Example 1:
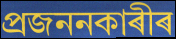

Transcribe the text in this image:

প্ৰজননকাৰীৰ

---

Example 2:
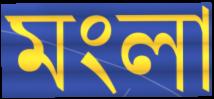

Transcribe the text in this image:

মংলা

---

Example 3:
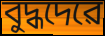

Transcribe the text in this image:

বুদ্ধদেৱে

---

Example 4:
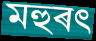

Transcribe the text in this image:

মহুৰৎ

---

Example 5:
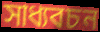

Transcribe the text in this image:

সাধ্যবচন